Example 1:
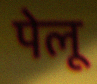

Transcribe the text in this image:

पेलू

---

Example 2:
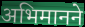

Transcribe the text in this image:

अभिमानने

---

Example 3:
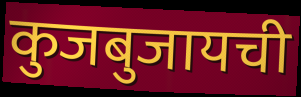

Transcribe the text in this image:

कुजबुजायची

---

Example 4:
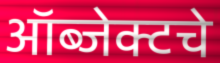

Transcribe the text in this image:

ऑब्जेक्टचे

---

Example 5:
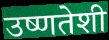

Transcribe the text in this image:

उष्णतेशी